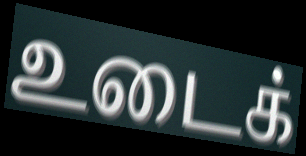
உடைக்